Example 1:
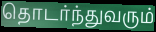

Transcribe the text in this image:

தொடர்ந்துவரும்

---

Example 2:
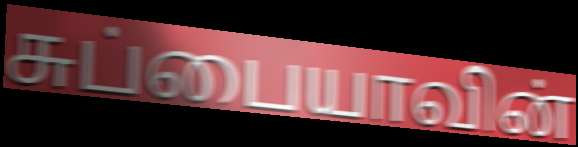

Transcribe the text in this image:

சுப்பையாவின்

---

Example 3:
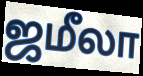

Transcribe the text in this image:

ஜமீலா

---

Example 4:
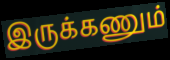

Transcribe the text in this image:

இருக்கணும்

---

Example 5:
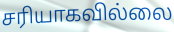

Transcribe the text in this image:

சரியாகவில்லை